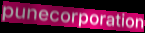
punecorporation